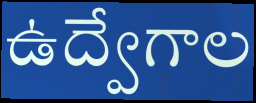
ఉద్వేగాల